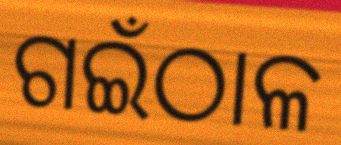
ଗଇଁଠାଳ